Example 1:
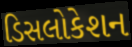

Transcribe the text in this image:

ડિસલોકેશન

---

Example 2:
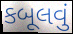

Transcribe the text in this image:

કબૂલવું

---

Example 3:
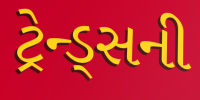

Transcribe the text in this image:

ટ્રેન્ડ્સની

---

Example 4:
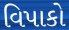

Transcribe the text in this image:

વિપાકો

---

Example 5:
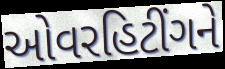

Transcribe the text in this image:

ઓવરહિટીંગને